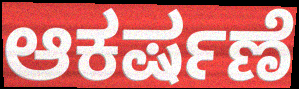
ಆಕರ್ಷಣೆ